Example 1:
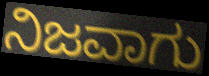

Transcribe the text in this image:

ನಿಜವಾಗು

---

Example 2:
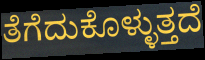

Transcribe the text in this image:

ತೆಗೆದುಕೊಳ್ಳುತ್ತದೆ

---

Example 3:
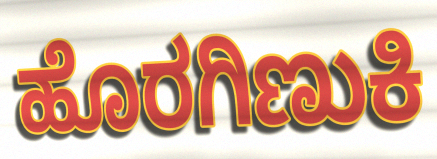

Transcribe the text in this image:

ಹೊರಗಿಣುಕಿ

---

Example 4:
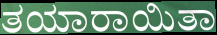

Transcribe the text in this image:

ತಯಾರಾಯಿತಾ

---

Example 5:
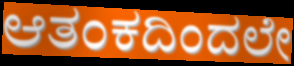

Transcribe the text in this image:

ಆತಂಕದಿಂದಲೇ